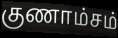
குணாம்சம்